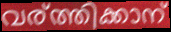
വര്ത്തിക്കാന്